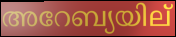
അറേബ്യയില്